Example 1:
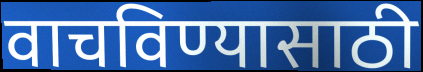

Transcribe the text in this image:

वाचविण्यासाठी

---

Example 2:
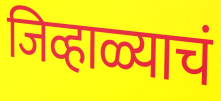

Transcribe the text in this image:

जिव्हाळ्याचं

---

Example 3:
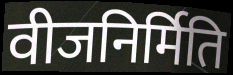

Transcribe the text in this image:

वीजनिर्मिति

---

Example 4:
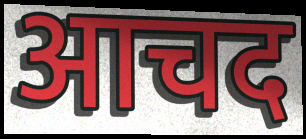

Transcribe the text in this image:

आचद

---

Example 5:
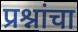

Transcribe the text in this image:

प्रश्नांचा